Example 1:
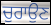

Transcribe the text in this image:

ਚੁਰਾਉਣ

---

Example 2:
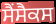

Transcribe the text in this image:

ਸੈਂਸੈਕਸ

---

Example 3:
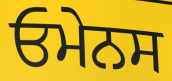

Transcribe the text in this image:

ਓਮੇਨਸ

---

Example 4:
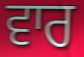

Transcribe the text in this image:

ਵਾਰ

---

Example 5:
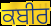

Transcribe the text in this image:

ਕਬੀਰ